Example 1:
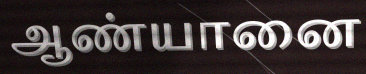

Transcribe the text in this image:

ஆண்யானை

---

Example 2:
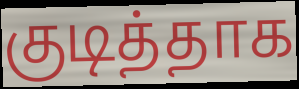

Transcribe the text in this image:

குடித்தாக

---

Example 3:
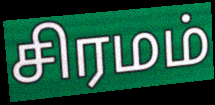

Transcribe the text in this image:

சிரமம்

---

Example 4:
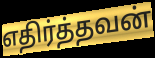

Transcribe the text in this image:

எதிர்த்தவன்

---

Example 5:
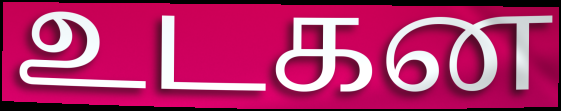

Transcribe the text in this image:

உடகன